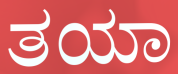
ತಯಾ